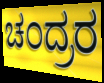
ಚಂದ್ರರ